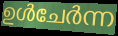
ഉൾചേർന്ന